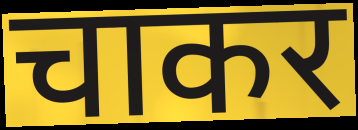
चाकर